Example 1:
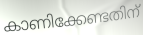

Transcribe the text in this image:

കാണിക്കേണ്ടതിന്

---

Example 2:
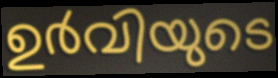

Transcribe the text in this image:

ഉർവിയുടെ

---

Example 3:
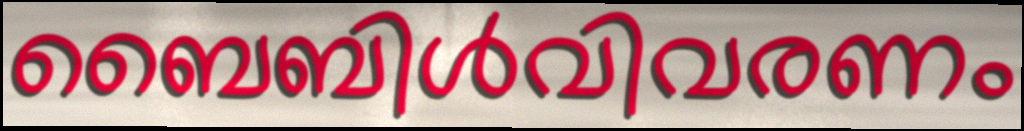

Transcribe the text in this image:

ബൈബിൾവിവരണം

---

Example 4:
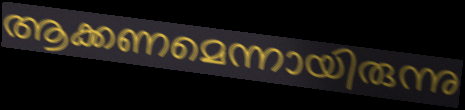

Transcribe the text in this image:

ആക്കണമെന്നായിരുന്നു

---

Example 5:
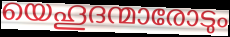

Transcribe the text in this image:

യെഹൂദന്മാരോടും